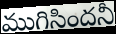
ముగిసిందనీ